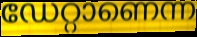
ഡേറ്റാണെന്ന